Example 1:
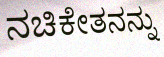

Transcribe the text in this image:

ನಚಿಕೇತನನ್ನು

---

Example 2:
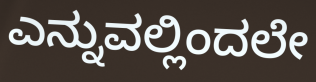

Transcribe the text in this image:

ಎನ್ನುವಲ್ಲಿಂದಲೇ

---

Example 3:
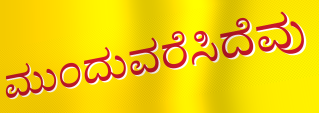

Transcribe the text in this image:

ಮುಂದುವರೆಸಿದೆವು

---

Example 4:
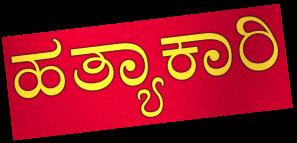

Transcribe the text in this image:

ಹತ್ಯಾಕಾರಿ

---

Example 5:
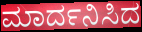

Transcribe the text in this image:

ಮಾರ್ದನಿಸಿದ